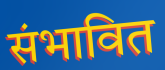
संभावित